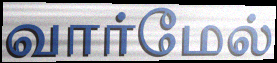
வார்மேல்